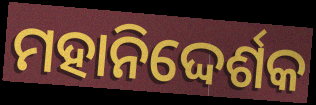
ମହାନିଦ୍ଦେର୍ଶକ